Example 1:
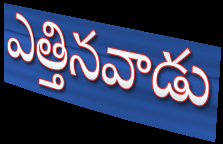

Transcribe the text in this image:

ఎత్తినవాడు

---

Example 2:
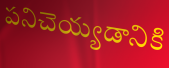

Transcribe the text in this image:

పనిచెయ్యడానికి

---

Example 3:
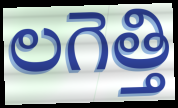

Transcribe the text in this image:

లగెత్తి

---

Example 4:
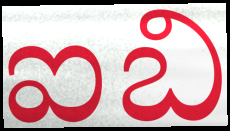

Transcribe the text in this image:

ఐబి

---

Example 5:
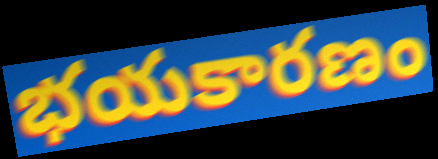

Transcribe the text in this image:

భయకారణం